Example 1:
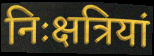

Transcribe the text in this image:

निःक्षत्रियां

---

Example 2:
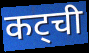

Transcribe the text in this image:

कट्ची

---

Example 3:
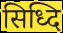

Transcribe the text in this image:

सिध्दि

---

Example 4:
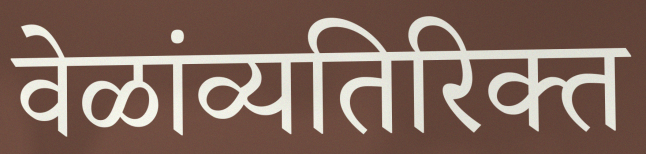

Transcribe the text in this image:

वेळांव्यतिरिक्त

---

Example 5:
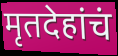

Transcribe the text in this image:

मृतदेहांचं